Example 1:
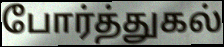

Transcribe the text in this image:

போர்த்துகல்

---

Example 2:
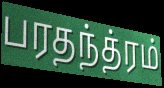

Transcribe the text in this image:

பரதந்த்ரம்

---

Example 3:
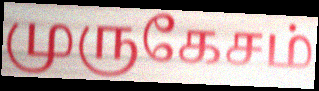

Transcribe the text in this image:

முருகேசம்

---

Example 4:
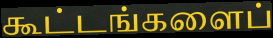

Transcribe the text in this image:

கூட்டங்களைப்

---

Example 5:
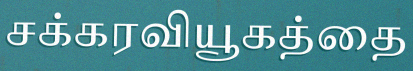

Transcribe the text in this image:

சக்கரவியூகத்தை